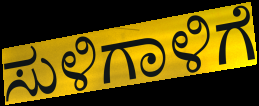
ಸುಳಿಗಾಳಿಗೆ